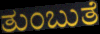
ತುಂಬುತೆ